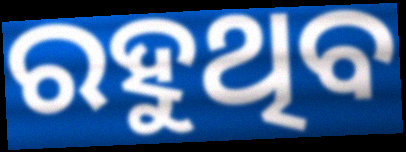
ରହୁଥିବ